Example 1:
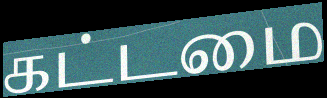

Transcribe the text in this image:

கட்டமை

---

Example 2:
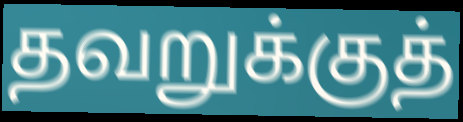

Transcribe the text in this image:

தவறுக்குத்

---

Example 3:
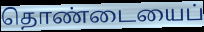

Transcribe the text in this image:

தொண்டையைப்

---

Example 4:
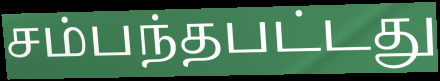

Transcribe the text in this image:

சம்பந்தபட்டது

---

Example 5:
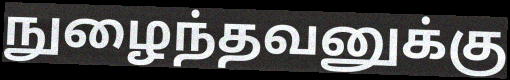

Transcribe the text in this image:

நுழைந்தவனுக்கு